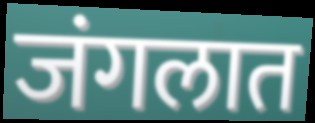
जंगलात